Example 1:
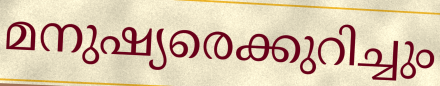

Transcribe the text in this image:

മനുഷ്യരെക്കുറിച്ചും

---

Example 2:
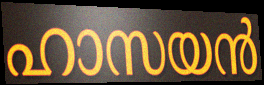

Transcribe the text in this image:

ഹാസയൻ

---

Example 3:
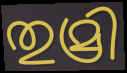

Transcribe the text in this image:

തുമ്രി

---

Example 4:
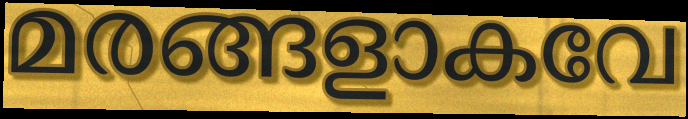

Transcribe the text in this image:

മരങ്ങളാകവേ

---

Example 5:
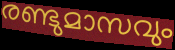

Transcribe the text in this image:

രണ്ടുമാസവും